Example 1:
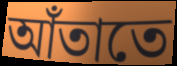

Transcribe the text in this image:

আঁতাতে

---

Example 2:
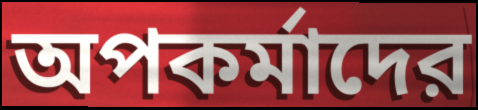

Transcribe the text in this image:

অপকর্মাদের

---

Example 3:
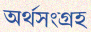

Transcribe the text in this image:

অর্থসংগ্রহ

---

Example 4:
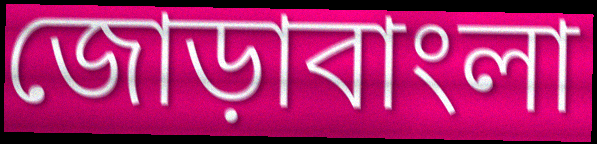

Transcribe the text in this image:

জোড়াবাংলা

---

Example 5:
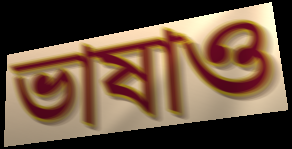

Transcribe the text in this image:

ভাষাও